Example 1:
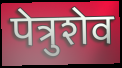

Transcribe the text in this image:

पेत्रुशेव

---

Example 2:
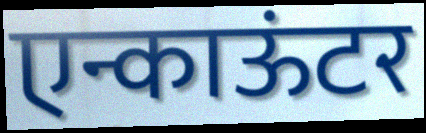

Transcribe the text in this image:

एन्काऊंटर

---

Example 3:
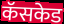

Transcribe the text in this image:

कॅसकेड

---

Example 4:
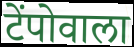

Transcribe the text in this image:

टेंपोवाला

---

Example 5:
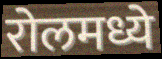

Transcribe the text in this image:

रोलमध्ये